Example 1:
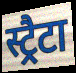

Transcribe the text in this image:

स्ट्रैटा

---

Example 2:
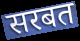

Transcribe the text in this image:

सरबत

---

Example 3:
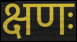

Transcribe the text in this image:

क्षणः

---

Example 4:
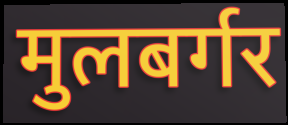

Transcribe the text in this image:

मुलबर्गर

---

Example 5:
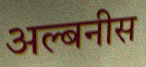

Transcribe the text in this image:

अल्बनीस